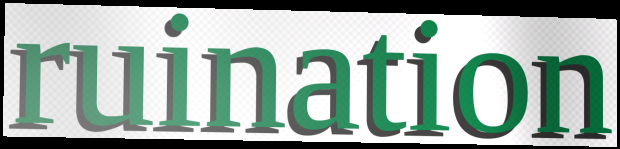
ruination